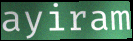
ayiram